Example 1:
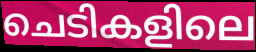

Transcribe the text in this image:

ചെടികളിലെ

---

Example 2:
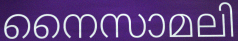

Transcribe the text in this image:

നൈസാമലി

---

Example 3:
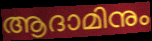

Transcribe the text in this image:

ആദാമിനും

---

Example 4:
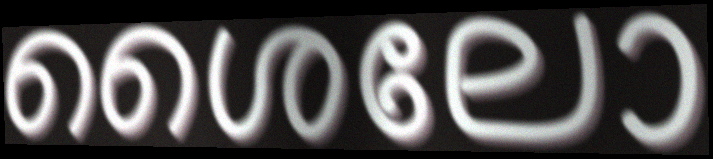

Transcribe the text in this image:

ശൈലോ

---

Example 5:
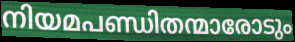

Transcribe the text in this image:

നിയമപണ്ഡിതന്മാരോടും